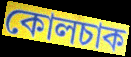
কোলচাক